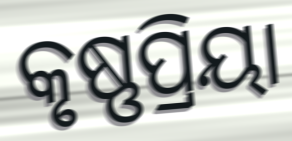
କୃଷ୍ଣପ୍ରିୟା